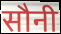
सौनी